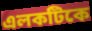
এলকটিকে